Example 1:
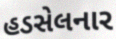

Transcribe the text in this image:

હડસેલનાર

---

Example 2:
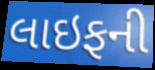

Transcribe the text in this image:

લાઇફની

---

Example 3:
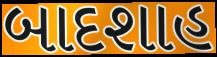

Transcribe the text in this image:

બાદશાહ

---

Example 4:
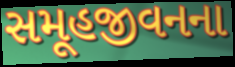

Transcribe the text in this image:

સમૂહજીવનના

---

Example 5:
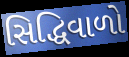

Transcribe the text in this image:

સિદ્ધિવાળો